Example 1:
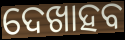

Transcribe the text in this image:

ଦେଖାହବ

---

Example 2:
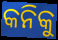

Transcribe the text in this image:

କନିକୁ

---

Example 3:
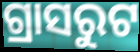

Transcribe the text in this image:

ଗ୍ରାସରୁଟ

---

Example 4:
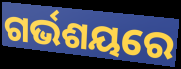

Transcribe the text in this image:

ଗର୍ଭଶୟରେ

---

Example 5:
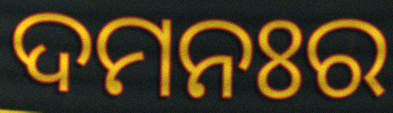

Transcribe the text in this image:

ଦମନଃର